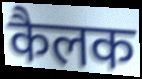
कैलक